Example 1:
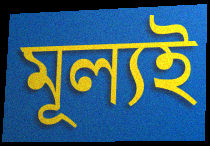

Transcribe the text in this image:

মূল্যই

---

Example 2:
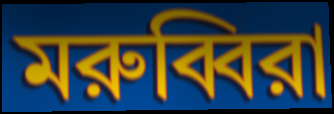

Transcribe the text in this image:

মরুব্বিরা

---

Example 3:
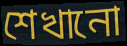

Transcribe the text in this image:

শেখানো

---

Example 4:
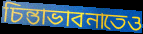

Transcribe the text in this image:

চিন্তাভাবনাতেও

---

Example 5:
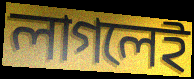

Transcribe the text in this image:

লাগলেই